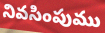
నివసింపుము